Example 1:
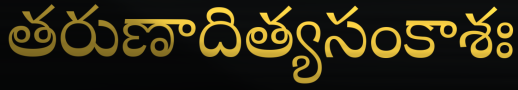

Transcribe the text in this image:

తరుణాదిత్యసంకాశః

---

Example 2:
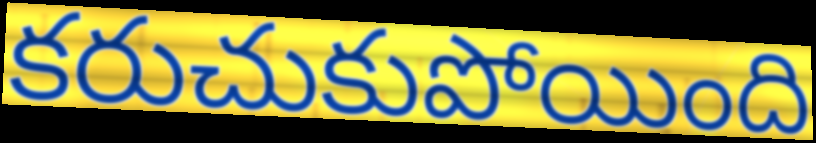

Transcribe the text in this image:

కరుచుకుపోయింది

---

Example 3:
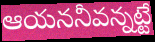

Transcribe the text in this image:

ఆయననీవన్నట్టే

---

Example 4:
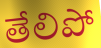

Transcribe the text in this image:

తేలిపో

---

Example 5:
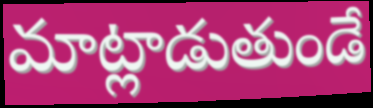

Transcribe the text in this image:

మాట్లాడుతుండే